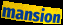
mansion